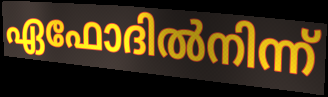
ഏഫോദിൽനിന്ന്